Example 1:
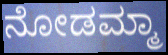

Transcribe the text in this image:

ನೋಡಮ್ಮಾ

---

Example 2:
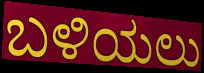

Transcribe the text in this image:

ಬಳಿಯಲು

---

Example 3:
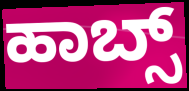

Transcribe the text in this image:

ಹಾಬ್ಸ್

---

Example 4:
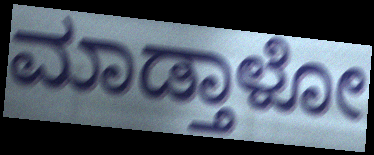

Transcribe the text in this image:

ಮಾಡ್ತಾಳೋ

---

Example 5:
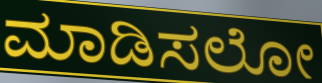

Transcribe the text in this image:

ಮಾಡಿಸಲೋ